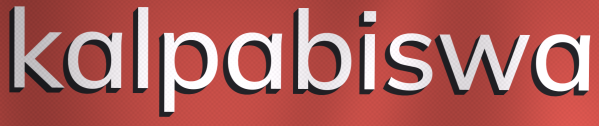
kalpabiswa